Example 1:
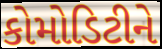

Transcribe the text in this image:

કોમોડિટીને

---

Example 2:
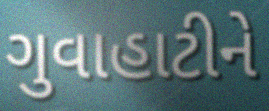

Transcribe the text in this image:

ગુવાહાટીને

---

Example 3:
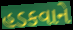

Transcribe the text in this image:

હડકવાને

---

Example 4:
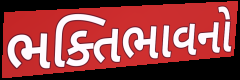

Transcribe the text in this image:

ભક્તિભાવનો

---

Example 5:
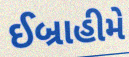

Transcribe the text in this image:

ઈબ્રાહીમે